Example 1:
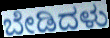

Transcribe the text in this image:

ಬೇಡಿದಳು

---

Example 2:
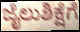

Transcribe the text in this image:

ಜೈಲುಶಿಕ್ಷೆಗೆ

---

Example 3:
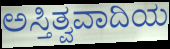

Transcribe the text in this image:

ಅಸ್ತಿತ್ವವಾದಿಯ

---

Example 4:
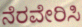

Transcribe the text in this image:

ನೆರವೇರಿಸಿ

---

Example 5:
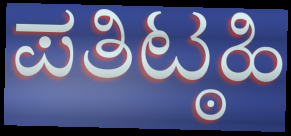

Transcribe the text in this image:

ಪತಿಟ್ಠಹಿ